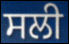
ਸਲੀ